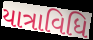
યાત્રાવિધિ